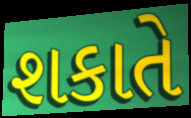
શકાતે